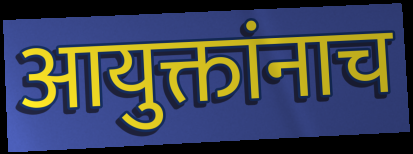
आयुक्तांनाच